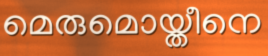
മെരുമൊയ്തീനെ